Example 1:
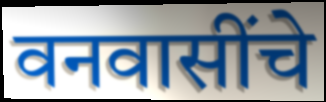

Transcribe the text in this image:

वनवासींचे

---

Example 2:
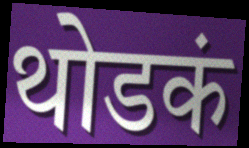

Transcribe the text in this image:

थोडकं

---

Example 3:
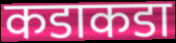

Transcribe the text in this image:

कडाकडा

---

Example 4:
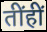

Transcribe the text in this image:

तींहीं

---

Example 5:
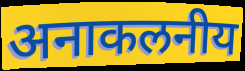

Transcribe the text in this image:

अनाकलनीय